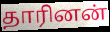
தாரினன்